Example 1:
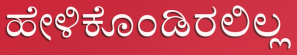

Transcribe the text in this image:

ಹೇಳಿಕೊಂಡಿರಲಿಲ್ಲ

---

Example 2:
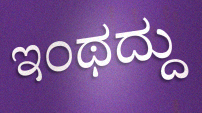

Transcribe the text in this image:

ಇಂಥದ್ದು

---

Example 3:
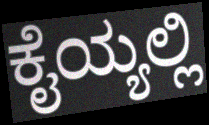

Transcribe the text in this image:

ಕೈಯ್ಯಲ್ಲಿ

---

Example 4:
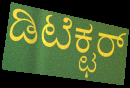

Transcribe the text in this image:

ಡಿಟೆಕ್ಟರ್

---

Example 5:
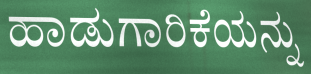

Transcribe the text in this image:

ಹಾಡುಗಾರಿಕೆಯನ್ನು